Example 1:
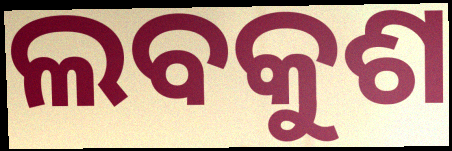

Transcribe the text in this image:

ଲବକୁଶ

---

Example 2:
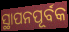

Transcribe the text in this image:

ସ୍ଥାପନପୂର୍ବକ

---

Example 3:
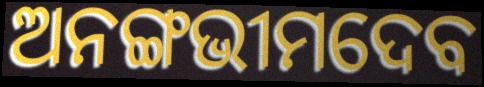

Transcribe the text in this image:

ଅନଙ୍ଗଭୀମଦେବ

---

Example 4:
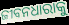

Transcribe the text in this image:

ଜୀବନଧାରାକୁ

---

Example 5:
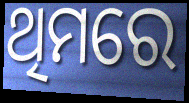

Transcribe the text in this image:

ଥିମରେ